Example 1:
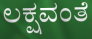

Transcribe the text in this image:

ಲಕ್ಷವಂತೆ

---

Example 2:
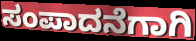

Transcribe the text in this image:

ಸಂಪಾದನೆಗಾಗಿ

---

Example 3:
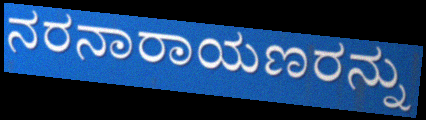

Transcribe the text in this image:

ನರನಾರಾಯಣರನ್ನು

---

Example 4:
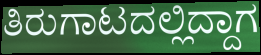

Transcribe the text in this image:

ತಿರುಗಾಟದಲ್ಲಿದ್ದಾಗ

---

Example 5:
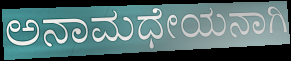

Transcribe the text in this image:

ಅನಾಮಧೇಯನಾಗಿ